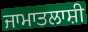
ਜਾਮਾਤਲਾਸ਼ੀ